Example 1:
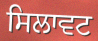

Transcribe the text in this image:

ਸਿਲਾਵਟ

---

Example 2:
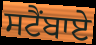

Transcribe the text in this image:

ਸਟੈਂਬਾਏ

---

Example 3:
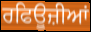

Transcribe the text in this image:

ਰਫਿਊਜ਼ੀਆਂ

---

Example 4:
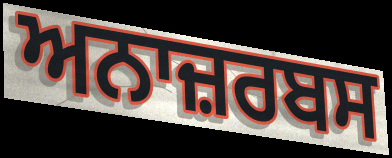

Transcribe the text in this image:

ਅਨਾਜ਼ਰਬਸ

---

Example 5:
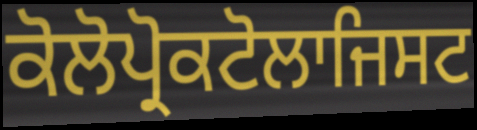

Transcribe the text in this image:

ਕੋਲੋਪ੍ਰੋਕਟੋਲਾਜਿਸਟ